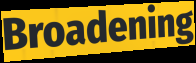
Broadening